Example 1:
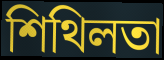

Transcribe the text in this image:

শিথিলতা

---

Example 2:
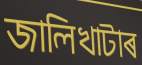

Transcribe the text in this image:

জালিখাটাৰ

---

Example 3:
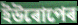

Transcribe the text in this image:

ইউৰোপেৰ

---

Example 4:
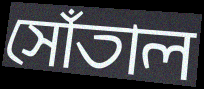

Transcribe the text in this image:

সোঁতাল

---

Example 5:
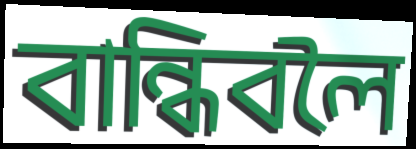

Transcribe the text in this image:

বান্ধিবলৈ